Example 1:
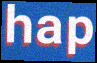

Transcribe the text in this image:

hap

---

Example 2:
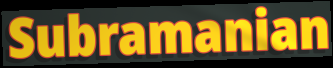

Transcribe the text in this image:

Subramanian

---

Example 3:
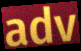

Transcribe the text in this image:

adv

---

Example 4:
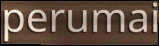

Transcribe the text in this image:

perumai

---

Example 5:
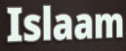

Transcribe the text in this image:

Islaam